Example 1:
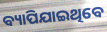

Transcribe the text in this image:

ବ୍ୟାପିଯାଇଥିବେ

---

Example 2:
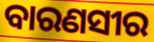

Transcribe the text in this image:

ବାରଣସୀର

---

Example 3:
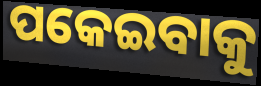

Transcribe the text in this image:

ପକେଇବାକୁ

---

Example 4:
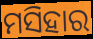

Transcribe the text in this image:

ମସିହାର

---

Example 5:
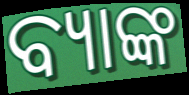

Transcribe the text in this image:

ବ୍ୟାଙ୍କ